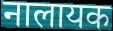
नालायक